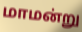
மாமன்று